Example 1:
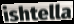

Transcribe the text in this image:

ishtella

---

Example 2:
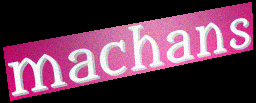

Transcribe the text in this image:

machans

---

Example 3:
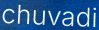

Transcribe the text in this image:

chuvadi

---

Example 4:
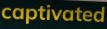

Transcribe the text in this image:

captivated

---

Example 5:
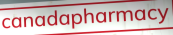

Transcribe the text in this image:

canadapharmacy